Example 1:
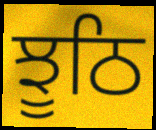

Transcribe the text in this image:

ਝੂਠਿ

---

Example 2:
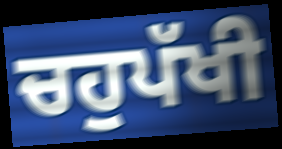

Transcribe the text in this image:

ਚਹੁਪੱਖੀ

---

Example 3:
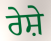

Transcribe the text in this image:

ਰੇਸ਼ੇ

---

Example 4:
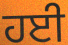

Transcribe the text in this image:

ਹਈ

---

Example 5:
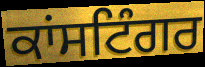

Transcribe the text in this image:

ਕਾਂਸਟਿੰਗਰ